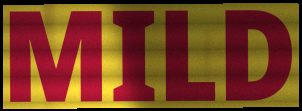
MILD